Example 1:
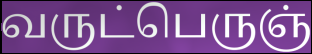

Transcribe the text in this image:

வருட்பெருஞ்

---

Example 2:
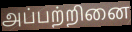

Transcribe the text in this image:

அப்பற்றினை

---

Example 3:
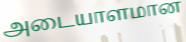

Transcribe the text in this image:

அடையாளமான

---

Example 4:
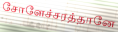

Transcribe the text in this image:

சோளேச்சரத்தானே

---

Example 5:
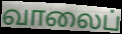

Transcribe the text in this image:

வாலைப்